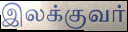
இலக்குவர்